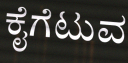
ಕೈಗೆಟುವ